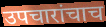
उपचारांचाच